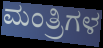
ಮಂತ್ರಿಗಳ